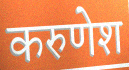
करुणेश